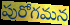
పురోగమన